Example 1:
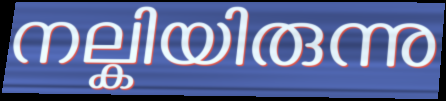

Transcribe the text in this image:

നല്കിയിരുന്നു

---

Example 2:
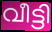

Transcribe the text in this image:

വീട്ടി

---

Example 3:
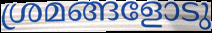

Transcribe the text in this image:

ശ്രമങ്ങളോടു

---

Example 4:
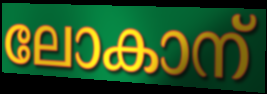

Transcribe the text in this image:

ലോകാന്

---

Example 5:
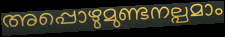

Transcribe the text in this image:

അപ്പൊഴുമുണ്ടനല്പമാം